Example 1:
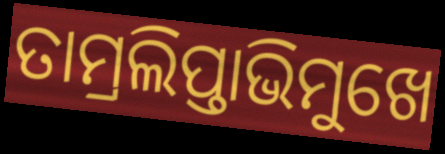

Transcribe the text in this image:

ତାମ୍ରଲିପ୍ତାଭିମୁଖେ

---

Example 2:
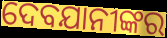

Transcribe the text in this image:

ଦେବଯାନୀଙ୍କର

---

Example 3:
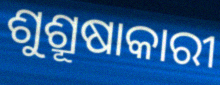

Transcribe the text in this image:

ଶୁଶ୍ରୂଷାକାରୀ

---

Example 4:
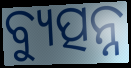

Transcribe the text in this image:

ବ୍ୟୁତ୍ପନ୍ନ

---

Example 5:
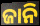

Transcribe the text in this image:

ଜାନି